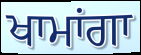
ਖਾਮਾਂਗਾ